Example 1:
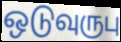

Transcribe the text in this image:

ஒடுவுருபு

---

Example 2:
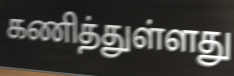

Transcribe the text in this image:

கணித்துள்ளது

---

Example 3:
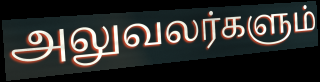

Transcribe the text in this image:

அலுவலர்களும்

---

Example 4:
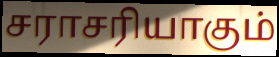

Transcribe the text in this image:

சராசரியாகும்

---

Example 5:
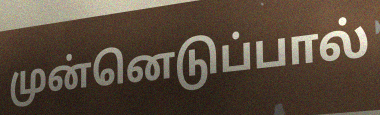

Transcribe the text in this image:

முன்னெடுப்பால்